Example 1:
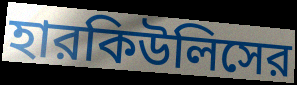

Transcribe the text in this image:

হারকিউলিসের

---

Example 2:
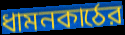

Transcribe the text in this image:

ধামনকাঠের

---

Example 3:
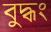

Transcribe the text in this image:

বুদ্ধং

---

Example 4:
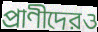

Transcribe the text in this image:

প্রাণীদেরও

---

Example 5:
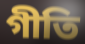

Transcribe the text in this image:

গীতি